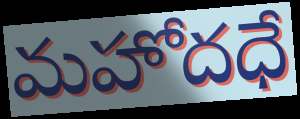
మహోదధే